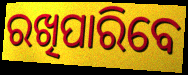
ରଖିପାରିବେ